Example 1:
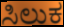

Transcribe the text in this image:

ಸಿಲುಕ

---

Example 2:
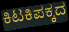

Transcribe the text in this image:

ಕಿಟಕಿಪಕ್ಕದ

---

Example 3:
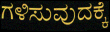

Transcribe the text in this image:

ಗಳಿಸುವುದಕ್ಕೆ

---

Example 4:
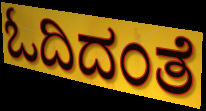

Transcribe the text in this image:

ಓದಿದಂತೆ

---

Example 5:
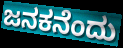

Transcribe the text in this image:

ಜನಕನೆಂದು